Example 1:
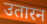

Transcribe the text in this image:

उतारन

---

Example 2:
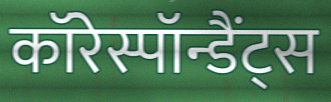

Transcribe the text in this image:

कॉरेस्पॉन्डैंट्स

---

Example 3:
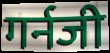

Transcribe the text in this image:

गर्नजी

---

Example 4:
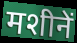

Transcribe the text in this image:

मशीनें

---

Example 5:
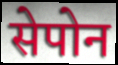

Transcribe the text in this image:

सेपोन